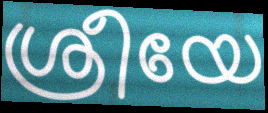
ശ്രീയേ